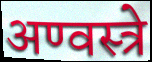
अण्वस्त्रे